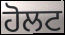
ਹੋਲਟ